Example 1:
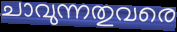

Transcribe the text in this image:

ചാവുന്നതുവരെ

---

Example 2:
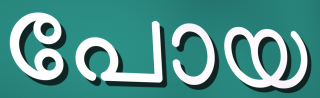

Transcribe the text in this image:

പോയ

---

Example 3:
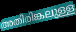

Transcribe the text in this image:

അതിരിങ്കലുള്ള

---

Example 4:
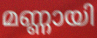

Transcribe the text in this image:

മണ്ണായി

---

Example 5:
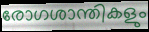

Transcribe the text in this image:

രോഗശാന്തികളും